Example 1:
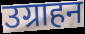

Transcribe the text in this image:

उग्राहन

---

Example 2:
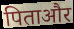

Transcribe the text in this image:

पिताऔर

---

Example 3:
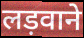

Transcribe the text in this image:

लड़वाने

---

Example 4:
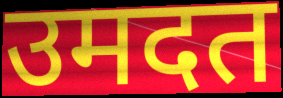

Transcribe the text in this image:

उमदत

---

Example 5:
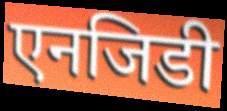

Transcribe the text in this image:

एनजिडी